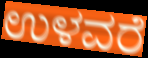
ಉಳವರೆ